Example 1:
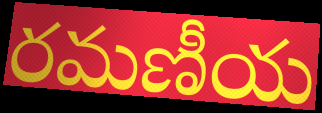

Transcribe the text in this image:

రమణీయ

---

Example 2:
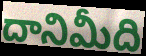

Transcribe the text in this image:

దానిమీది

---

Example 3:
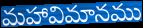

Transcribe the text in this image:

మహావిమానము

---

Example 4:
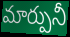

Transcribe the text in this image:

మార్పునీ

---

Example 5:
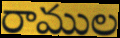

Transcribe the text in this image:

రాముల